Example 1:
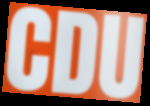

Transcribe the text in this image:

CDU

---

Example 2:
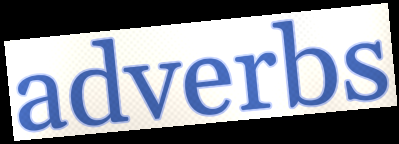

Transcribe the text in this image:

adverbs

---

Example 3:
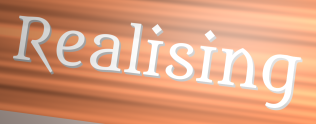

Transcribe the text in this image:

Realising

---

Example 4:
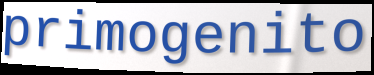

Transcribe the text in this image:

primogenito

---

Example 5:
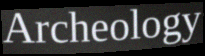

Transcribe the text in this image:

Archeology